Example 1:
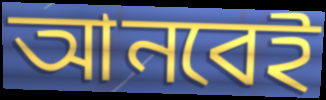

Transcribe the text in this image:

আনবেই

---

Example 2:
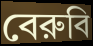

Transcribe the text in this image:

বেরুবি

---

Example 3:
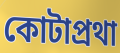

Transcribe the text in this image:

কোটাপ্রথা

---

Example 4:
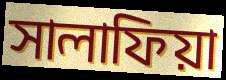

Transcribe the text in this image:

সালাফিয়া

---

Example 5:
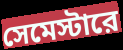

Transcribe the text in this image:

সেমেস্টারে